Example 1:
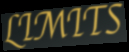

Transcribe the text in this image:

LIMITS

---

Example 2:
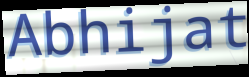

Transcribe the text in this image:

Abhijat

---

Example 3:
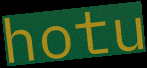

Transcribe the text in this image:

hotu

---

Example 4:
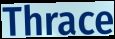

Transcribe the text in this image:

Thrace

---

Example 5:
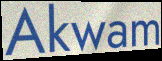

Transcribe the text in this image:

Akwam